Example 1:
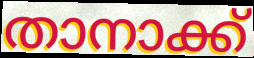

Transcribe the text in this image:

താനാക്ക്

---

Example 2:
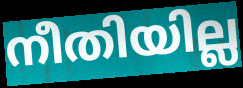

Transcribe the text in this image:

നീതിയില്ല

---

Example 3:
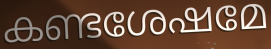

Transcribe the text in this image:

കണ്ടശേഷമേ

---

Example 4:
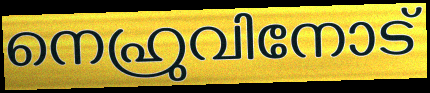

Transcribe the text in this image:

നെഹ്രുവിനോട്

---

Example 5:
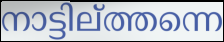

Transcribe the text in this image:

നാട്ടില്ത്തന്നെ